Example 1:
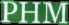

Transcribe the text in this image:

PHM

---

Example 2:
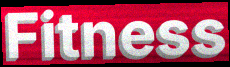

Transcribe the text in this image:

Fitness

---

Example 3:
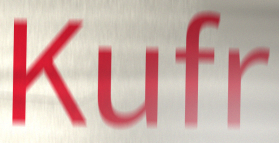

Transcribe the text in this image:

Kufr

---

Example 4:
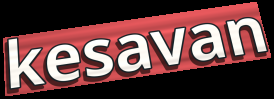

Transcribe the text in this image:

kesavan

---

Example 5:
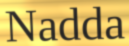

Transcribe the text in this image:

Nadda